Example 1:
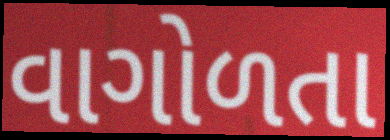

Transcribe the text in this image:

વાગોળતા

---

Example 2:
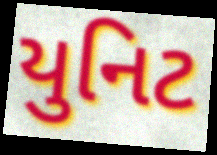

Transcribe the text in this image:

યુનિટ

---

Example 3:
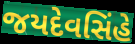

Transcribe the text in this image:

જયદેવસિંહે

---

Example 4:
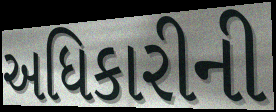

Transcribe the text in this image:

અધિકારીની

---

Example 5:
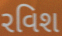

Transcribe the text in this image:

રવિશ